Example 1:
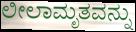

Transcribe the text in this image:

ಲೀಲಾಮೃತವನ್ನು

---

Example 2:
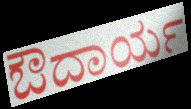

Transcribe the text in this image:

ಔದಾರ್ಯ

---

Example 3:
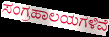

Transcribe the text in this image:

ಸಂಗ್ರಹಾಲಯಗಳಿವೆ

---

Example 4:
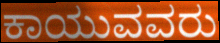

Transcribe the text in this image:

ಕಾಯುವವರು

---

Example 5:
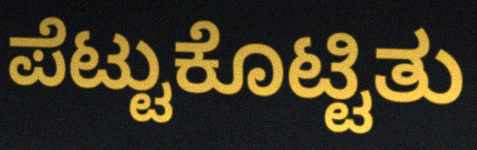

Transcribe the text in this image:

ಪೆಟ್ಟುಕೊಟ್ಟಿತು